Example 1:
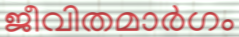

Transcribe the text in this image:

ജീവിതമാർഗം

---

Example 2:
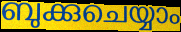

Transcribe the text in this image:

ബുക്കുചെയ്യാം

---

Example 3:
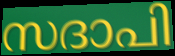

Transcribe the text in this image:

സദാപി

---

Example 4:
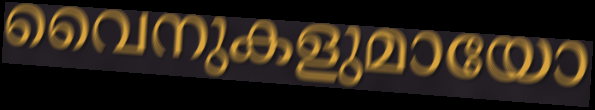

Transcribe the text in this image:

വൈനുകളുമായോ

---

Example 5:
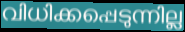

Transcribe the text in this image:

വിധിക്കപ്പെടുന്നില്ല